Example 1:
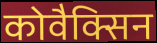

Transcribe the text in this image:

कोवैक्सिन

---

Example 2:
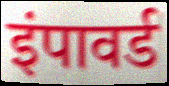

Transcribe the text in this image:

इंपावर्ड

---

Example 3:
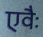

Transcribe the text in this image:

एवैः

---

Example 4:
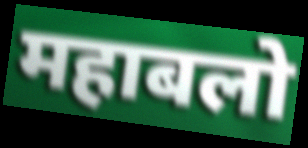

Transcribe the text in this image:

महाबलो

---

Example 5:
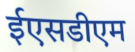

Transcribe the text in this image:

ईएसडीएम